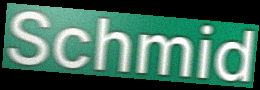
Schmid